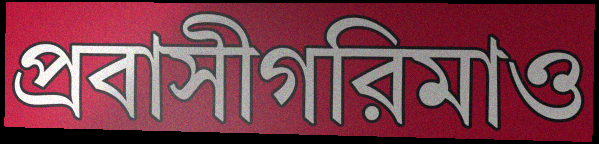
প্রবাসীগরিমাও